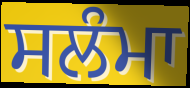
ਸਲੰਮਾ